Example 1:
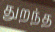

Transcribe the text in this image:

துறந்த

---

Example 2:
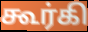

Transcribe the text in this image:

கூர்கி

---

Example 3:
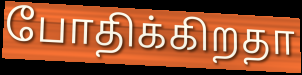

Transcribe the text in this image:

போதிக்கிறதா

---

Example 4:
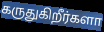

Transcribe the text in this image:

கருதுகிறீர்களா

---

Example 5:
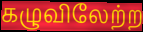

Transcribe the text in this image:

கழுவிலேற்ற